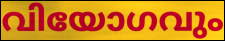
വിയോഗവും